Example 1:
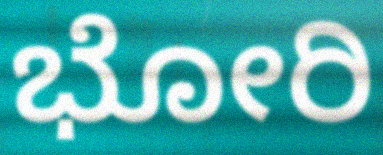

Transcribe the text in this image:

ಭೋರಿ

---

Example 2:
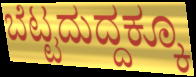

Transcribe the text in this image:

ಬೆಟ್ಟದುದ್ದಕ್ಕೂ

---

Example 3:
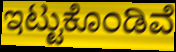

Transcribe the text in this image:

ಇಟ್ಟುಕೊಂಡಿವೆ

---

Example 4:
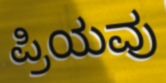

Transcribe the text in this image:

ಪ್ರಿಯವು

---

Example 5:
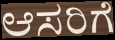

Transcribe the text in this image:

ಆಸರಿಗೆ